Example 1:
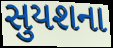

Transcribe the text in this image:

સુયશના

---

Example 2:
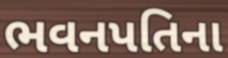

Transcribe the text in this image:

ભવનપતિના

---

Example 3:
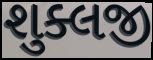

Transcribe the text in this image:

શુક્લજી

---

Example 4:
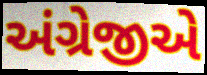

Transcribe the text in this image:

અંગ્રેજીએ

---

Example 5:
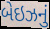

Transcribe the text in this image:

બેઇઝનું